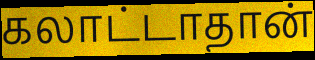
கலாட்டாதான்